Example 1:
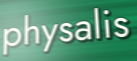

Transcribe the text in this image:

physalis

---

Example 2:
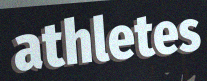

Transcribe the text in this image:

athletes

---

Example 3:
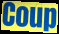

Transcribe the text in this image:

Coup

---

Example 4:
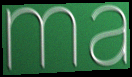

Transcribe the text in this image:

ma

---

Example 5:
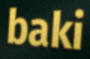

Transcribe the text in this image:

baki